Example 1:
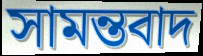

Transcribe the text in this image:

সামন্তবাদ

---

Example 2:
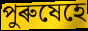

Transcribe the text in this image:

পুৰুষেহে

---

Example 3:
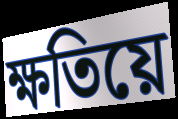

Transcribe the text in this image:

ক্ষতিয়ে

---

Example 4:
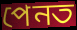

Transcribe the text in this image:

পেনত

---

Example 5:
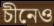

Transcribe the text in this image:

চীনেও